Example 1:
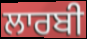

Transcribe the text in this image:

ਲਾਰਬੀ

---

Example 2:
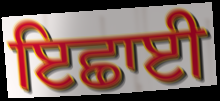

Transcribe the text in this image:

ਇਛਾਈ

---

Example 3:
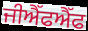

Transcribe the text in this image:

ਜੀਐੱਫਐੱਫ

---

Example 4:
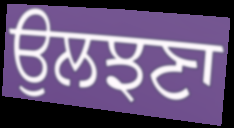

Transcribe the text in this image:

ਉਲਝਣਾ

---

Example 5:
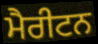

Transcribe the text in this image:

ਮੈਰੀਟਨ